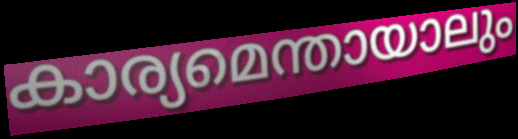
കാര്യമെന്തായാലും